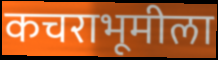
कचराभूमीला